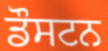
ਡੌਸਟਨ